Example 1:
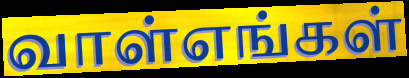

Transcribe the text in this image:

வாள்எங்கள்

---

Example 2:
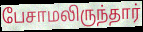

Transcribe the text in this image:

பேசாமலிருந்தார்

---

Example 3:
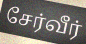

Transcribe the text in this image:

சேர்வீர்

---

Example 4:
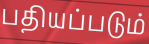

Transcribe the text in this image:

பதியப்படும்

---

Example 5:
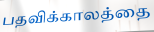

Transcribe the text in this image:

பதவிக்காலத்தை